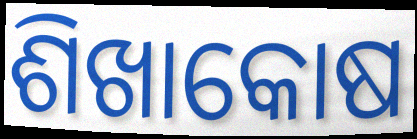
ଶିଖାକୋଷ